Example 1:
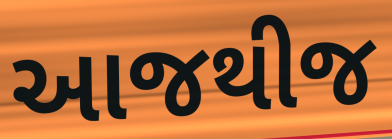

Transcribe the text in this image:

આજથીજ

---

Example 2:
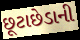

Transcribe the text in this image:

છૂટાછેડાની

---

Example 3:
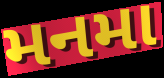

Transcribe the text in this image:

મનમા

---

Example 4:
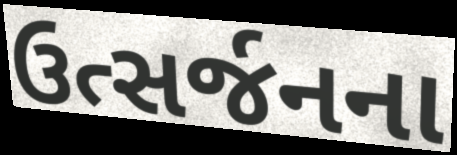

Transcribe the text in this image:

ઉત્સર્જનના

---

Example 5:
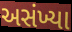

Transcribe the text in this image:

અસંખ્યા